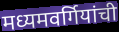
मध्यमवर्गियांची